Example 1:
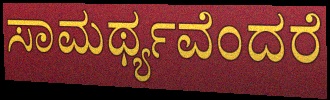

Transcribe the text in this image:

ಸಾಮರ್ಥ್ಯವೆಂದರೆ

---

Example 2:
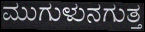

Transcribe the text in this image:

ಮುಗುಳುನಗುತ್ತ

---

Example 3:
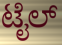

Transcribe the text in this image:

ಟೈಲ್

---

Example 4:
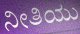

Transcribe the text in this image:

ನೀತಿಯು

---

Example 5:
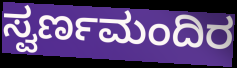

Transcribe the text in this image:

ಸ್ವರ್ಣಮಂದಿರ